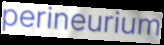
perineurium